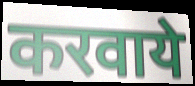
करवाये